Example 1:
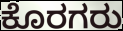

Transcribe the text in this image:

ಕೊರಗರು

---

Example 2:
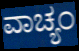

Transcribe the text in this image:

ವಾಚ್ಯಂ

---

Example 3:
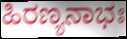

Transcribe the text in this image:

ಹಿರಣ್ಯನಾಭಃ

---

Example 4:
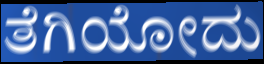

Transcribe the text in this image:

ತೆಗಿಯೋದು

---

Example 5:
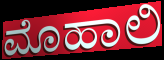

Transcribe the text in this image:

ಮೊಹಾಲಿ